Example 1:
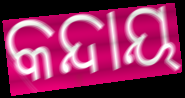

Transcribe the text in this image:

କନ୍ଦାୟ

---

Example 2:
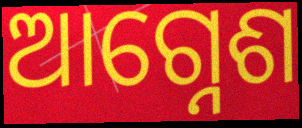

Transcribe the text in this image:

ଆଗ୍ନେଶ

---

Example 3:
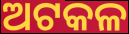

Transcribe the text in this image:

ଅଟକଳ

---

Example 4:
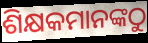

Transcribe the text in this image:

ଶିକ୍ଷକମାନଙ୍କଠୁ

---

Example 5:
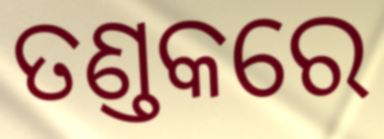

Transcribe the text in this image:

ତଣ୍ଡକରେ